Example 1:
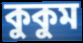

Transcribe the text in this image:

কুকুম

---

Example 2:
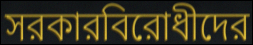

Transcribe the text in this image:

সরকারবিরোধীদের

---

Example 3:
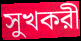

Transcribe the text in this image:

সুখকরী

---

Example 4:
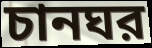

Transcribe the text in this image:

চানঘর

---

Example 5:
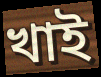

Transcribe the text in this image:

খাই